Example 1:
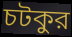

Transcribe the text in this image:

চটকুর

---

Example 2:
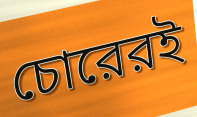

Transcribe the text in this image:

চোরেরই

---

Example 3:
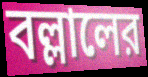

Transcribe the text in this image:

বল্লালের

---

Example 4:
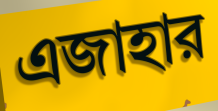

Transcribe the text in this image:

এজাহার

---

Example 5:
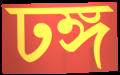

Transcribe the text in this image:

ঢঙ্গ